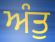
ਅੰਤੁ